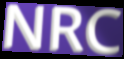
NRC